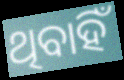
ଥିବାହିଁ